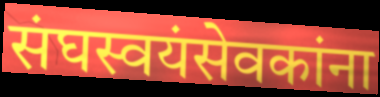
संघस्वयंसेवकांना